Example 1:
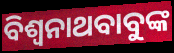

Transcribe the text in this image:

ବିଶ୍ୱନାଥବାବୁଙ୍କ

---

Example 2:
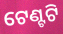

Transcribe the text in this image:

ଟେଣ୍ଟଟି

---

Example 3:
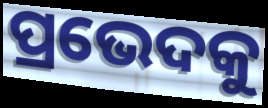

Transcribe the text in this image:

ପ୍ରଭେଦକୁ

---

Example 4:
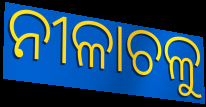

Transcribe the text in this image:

ନୀଳାଚଳୁ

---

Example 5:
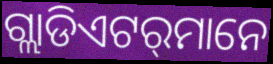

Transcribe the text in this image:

ଗ୍ଲାଡିଏଟର୍‍ମାନେ